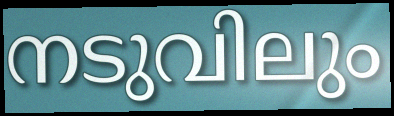
നടുവിലും